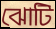
ঝোটি